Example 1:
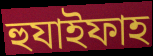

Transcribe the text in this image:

হুযাইফাহ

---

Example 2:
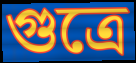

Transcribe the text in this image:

গুত্রে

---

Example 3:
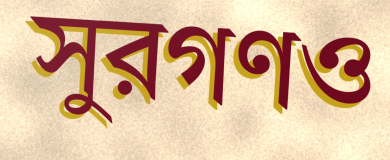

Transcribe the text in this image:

সুরগণও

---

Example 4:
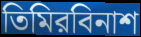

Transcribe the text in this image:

তিমিরবিনাশ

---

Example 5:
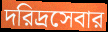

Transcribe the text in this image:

দরিদ্রসেবার